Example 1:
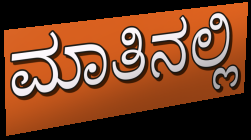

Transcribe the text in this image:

ಮಾತಿನಲ್ಲಿ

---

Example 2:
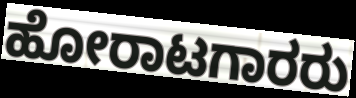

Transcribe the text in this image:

ಹೋರಾಟಗಾರರು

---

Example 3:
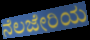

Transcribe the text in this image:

ನೆಲಜೇರಿಯ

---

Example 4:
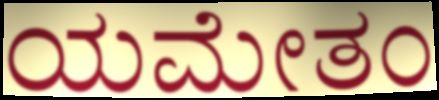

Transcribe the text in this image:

ಯಮೇತಂ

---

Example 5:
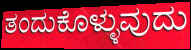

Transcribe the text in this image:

ತಂದುಕೊಳ್ಳುವುದು